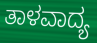
ತಾಳವಾದ್ಯ